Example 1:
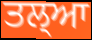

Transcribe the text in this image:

ਤਲ੍ਆ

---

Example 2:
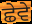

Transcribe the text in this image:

ਛੇਵੇ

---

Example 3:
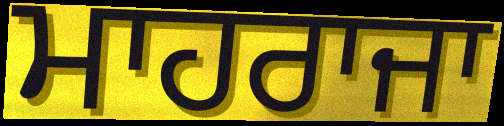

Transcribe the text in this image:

ਮਾਹਰਾਜਾ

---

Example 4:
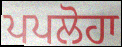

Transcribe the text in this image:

ਪਪਲੋਹਾ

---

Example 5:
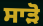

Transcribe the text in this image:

ਸਾੜੋ